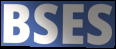
BSES